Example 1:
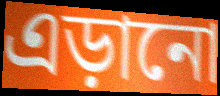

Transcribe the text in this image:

এড়ানো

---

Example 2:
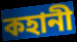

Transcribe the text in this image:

কহানী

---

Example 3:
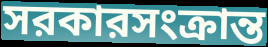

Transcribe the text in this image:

সরকারসংক্রান্ত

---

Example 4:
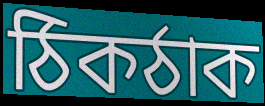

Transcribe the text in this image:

ঠিকঠাক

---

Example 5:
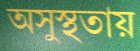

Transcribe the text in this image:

অসুস্থতায়